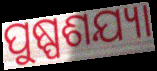
ପୁଷ୍ପଶଯ୍ୟା